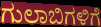
ಗುಲಾಬಿಗಳಿಗೆ